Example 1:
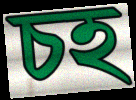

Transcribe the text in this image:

চহ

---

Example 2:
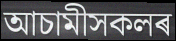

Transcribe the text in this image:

আচামীসকলৰ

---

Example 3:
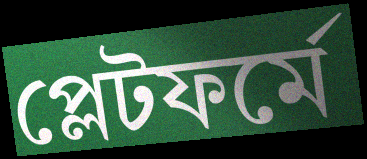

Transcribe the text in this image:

প্লেটফৰ্মে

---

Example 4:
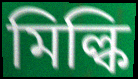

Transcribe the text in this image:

মিল্কি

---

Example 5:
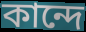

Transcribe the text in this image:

কান্দে